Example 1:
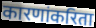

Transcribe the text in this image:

कारणांकरिता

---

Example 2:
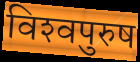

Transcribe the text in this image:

विश्वपुरुष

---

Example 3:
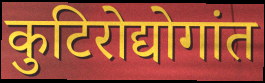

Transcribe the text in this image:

कुटिरोद्योगांत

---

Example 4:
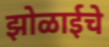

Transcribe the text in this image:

झोळाईचे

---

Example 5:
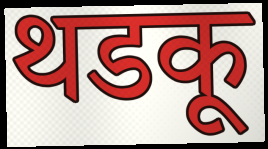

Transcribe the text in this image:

थडकू